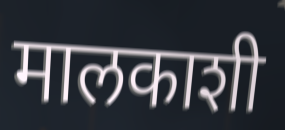
मालकाशी